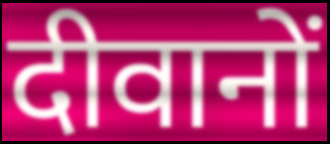
दीवानों